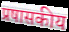
प्रषासकीय